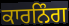
ਕਾਰਨਿੰਗ